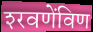
श्रवणेंविण